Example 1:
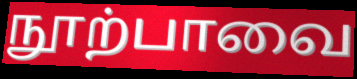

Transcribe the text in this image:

நூற்பாவை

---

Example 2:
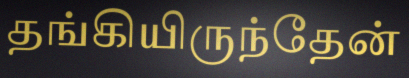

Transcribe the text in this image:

தங்கியிருந்தேன்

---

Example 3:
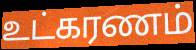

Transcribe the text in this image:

உட்கரணம்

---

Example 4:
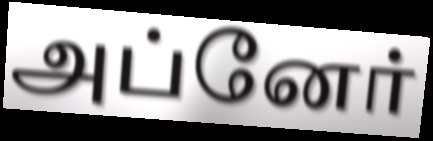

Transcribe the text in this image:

அப்னேர்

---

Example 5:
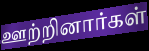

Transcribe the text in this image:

ஊற்றினார்கள்